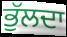
ਭੁੱਲਦਾ